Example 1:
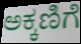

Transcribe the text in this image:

ಅಕ್ಕಣಿಗೆ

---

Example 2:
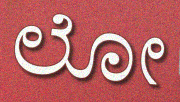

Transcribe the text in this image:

ಲೋ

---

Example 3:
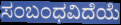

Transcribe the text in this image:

ಸಂಬಂಧವಿದೆಯೆ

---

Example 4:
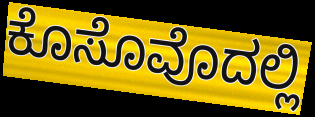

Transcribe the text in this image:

ಕೊಸೊವೊದಲ್ಲಿ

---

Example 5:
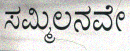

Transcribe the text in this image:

ಸಮ್ಮಿಲನವೇ